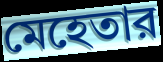
মেহেতার